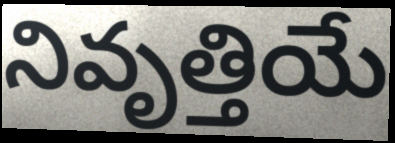
నివృత్తియే